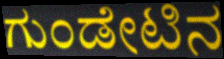
ಗುಂಡೇಟಿನ